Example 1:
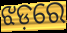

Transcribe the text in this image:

ଝଡ଼ରେ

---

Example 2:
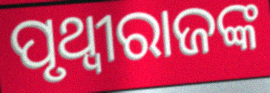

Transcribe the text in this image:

ପୃଥ୍ୱୀରାଜଙ୍କ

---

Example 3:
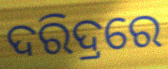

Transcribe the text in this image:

ଦରିଦ୍ରରେ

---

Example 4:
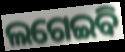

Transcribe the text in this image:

ଲଗେଇବି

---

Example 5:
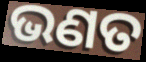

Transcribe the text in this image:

ଭଣତ